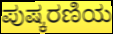
ಪುಷ್ಕರಣಿಯ